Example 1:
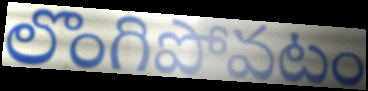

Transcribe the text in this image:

లొంగిపోవటం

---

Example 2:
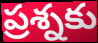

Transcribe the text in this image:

ప్రశ్నకు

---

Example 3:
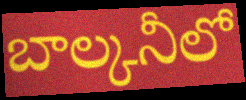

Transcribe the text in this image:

బాల్కనీలో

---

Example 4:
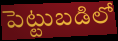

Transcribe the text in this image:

పెట్టుబడిలో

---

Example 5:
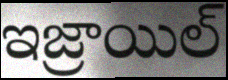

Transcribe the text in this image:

ఇజ్రాయిల్